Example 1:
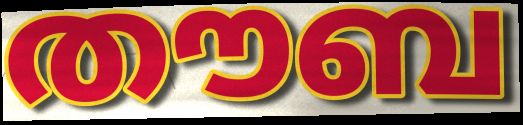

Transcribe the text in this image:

തൗബ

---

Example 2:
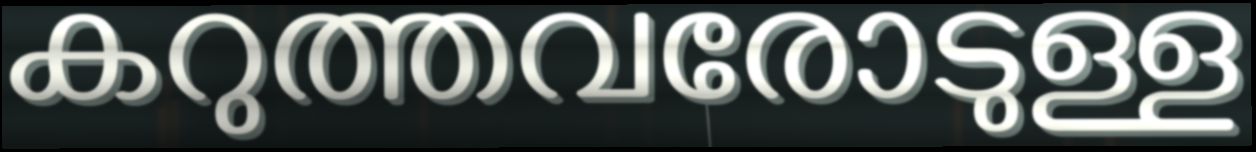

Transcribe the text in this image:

കറുത്തവരോടുള്ള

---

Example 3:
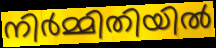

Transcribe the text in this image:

നിർമ്മിതിയിൽ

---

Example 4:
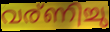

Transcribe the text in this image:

വര്ണിച്ചു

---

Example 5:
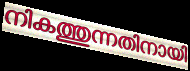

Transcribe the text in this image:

നികത്തുന്നതിനായി